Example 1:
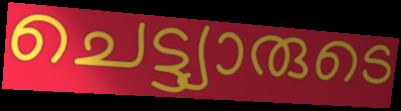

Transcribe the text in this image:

ചെട്ട്യാരുടെ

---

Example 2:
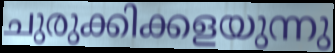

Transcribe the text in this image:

ചുരുക്കിക്കളയുന്നു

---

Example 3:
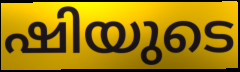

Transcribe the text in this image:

ഷിയുടെ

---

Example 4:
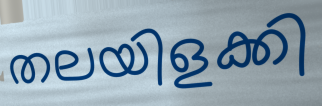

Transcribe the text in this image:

തലയിളക്കി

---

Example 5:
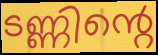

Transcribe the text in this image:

ടണ്ണിന്റെ